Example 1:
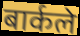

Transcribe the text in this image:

बार्कले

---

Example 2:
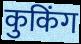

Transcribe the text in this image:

कुकिंग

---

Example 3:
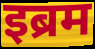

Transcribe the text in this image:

इब्रम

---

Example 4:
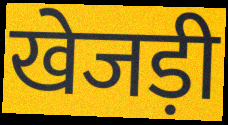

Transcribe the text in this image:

खेजड़ी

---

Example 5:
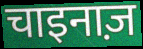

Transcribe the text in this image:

चाइनाज़